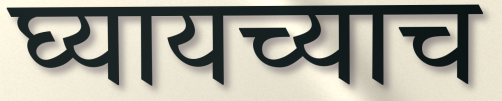
घ्यायच्याच